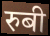
रुबी